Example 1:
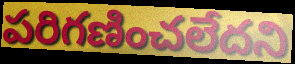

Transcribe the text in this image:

పరిగణించలేదని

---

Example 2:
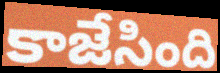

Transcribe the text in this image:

కాజేసింది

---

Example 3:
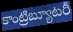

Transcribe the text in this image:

కాంట్రిబ్యూటరీ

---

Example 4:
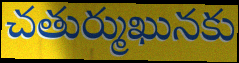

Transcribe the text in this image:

చతుర్ముఖునకు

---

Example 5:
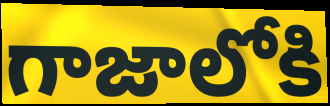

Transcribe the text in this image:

గాజాలోకి